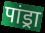
पांड्रा